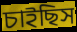
চাইছিস